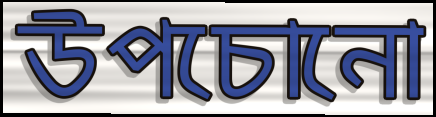
উপচোনো